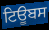
ਟਿਊਬਸ